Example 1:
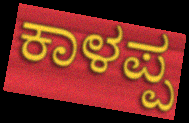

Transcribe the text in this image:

ಕಾಳಪ್ಪ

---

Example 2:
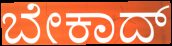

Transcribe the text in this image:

ಬೇಕಾದ್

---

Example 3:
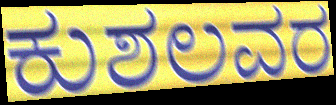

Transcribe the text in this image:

ಕುಶಲವರ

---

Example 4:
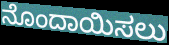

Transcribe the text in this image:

ನೊಂದಾಯಿಸಲು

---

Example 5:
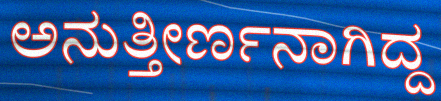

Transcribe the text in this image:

ಅನುತ್ತೀರ್ಣನಾಗಿದ್ದ